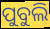
ପୁବୁଲି